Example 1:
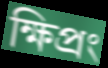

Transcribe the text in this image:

ক্ষিপ্রং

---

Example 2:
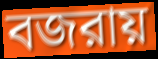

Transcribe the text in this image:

বজরায়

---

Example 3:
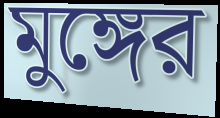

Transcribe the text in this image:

মুঙ্গের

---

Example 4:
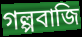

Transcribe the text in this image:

গল্পবাজি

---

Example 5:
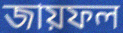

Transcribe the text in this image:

জায়ফল